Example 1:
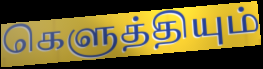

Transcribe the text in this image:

கெளுத்தியும்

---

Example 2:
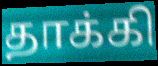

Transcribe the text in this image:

தாக்கி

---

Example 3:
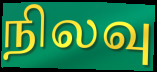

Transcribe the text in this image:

நிலவு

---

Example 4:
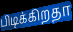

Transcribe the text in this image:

பிடிக்கிறதா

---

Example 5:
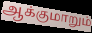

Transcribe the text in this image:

ஆக்குமாறும்